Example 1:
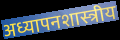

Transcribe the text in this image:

अध्यापनशास्त्रीय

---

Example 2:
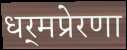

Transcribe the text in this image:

धर्मप्रेरणा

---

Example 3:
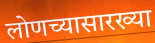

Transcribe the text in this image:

लोणच्यासारख्या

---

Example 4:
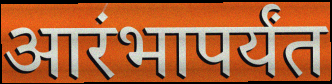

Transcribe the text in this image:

आरंभापर्यंत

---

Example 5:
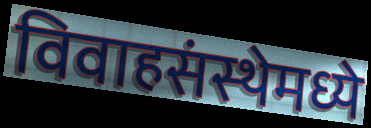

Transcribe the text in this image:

विवाहसंस्थेमध्ये